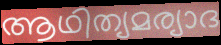
ആഥിത്യമര്യാദ